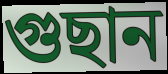
গুছান